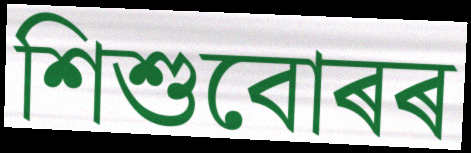
শিশুবোৰৰ